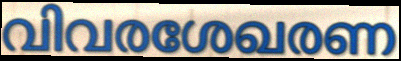
വിവരശേഖരണ